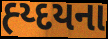
હ્ય્દયના